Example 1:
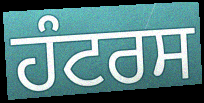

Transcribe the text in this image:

ਹੰਟਰਸ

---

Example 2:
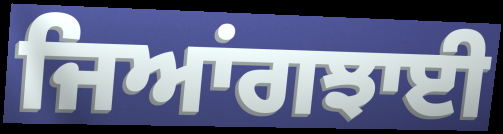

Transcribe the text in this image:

ਜਿਆਂਗਝਾਈ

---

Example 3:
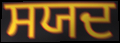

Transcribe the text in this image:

ਸਯਦ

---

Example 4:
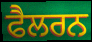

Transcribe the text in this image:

ਫੈਲਰਨ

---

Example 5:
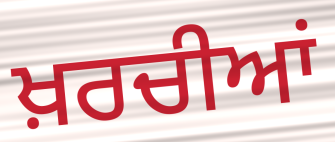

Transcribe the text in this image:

ਖ਼ਰਚੀਆਂ